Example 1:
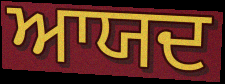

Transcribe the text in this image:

ਆਯਦ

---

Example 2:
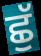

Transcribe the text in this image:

ਛੁੱ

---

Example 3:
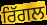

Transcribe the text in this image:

ਰਿੱਗਲ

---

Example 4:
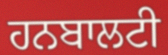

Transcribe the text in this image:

ਹਨਬਾਲਟੀ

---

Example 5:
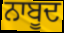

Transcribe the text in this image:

ਨਾਬੂਦ